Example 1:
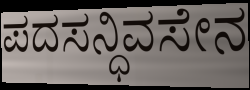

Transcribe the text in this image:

ಪದಸನ್ಧಿವಸೇನ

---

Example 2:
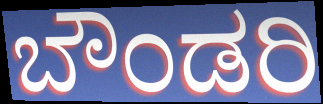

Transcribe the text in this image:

ಬೌಂಡರಿ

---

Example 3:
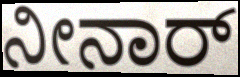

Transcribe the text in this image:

ನೀನಾರ್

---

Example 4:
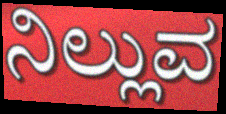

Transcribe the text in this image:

ನಿಲ್ಲುವ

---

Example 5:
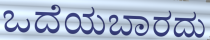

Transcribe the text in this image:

ಒದೆಯಬಾರದು